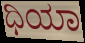
ಧಿಯಾ